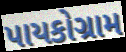
પાયકોગ્રામ